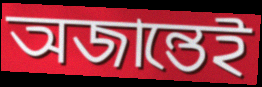
অজান্তেই